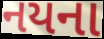
નયના